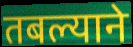
तबल्याने